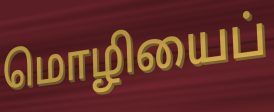
மொழியைப்